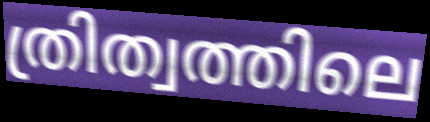
ത്രിത്വത്തിലെ